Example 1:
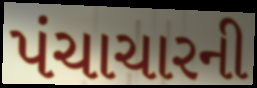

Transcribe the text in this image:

પંચાચારની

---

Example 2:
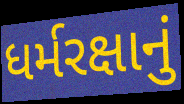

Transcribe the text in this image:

ધર્મરક્ષાનું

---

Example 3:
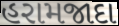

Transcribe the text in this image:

હરામજાદા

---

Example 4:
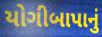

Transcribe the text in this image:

યોગીબાપાનું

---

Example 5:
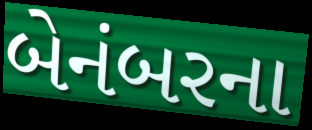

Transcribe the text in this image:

બેનંબરના